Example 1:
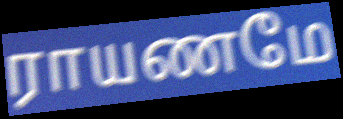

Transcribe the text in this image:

ராயணமே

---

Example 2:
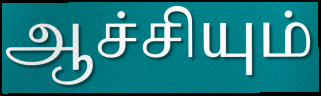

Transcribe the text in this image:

ஆச்சியும்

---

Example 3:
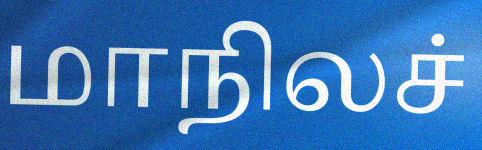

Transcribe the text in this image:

மாநிலச்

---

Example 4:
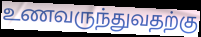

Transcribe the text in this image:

உணவருந்துவதற்கு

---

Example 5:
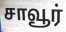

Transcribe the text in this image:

சாவூர்